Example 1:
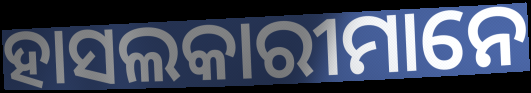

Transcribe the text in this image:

ହାସଲକାରୀମାନେ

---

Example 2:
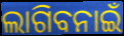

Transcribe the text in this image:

ଲାଗିବନାଇଁ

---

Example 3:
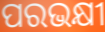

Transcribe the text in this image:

ପରଭକ୍ଷୀ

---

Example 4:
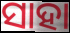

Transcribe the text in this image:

ସାହା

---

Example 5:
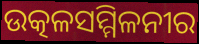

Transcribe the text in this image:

ଉତ୍କଳସମ୍ମିଳନୀର